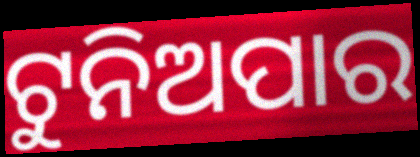
ଟୁନିଅପାର